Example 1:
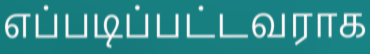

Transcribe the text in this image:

எப்படிப்பட்டவராக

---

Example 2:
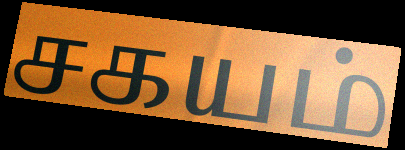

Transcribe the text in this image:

சகயம்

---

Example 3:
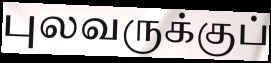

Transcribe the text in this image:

புலவருக்குப்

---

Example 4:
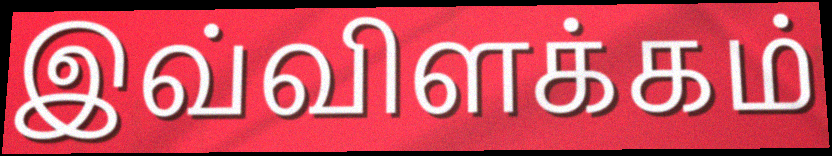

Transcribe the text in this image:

இவ்விளக்கம்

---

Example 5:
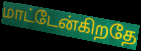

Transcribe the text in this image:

மாட்டேன்கிறதே